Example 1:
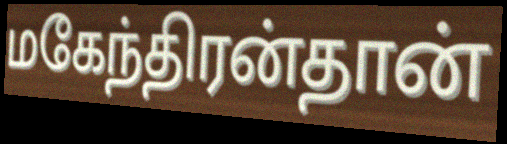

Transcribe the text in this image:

மகேந்திரன்தான்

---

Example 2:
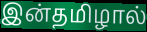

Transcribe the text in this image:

இன்தமிழால்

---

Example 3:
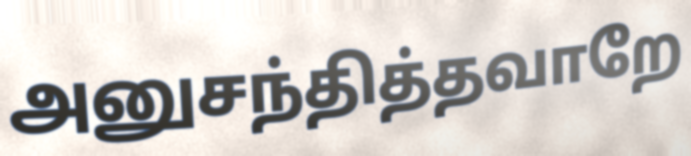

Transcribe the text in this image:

அனுசந்தித்தவாறே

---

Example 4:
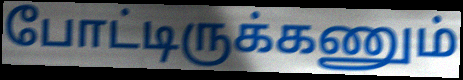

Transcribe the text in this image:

போட்டிருக்கணும்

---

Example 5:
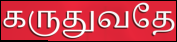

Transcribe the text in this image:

கருதுவதே